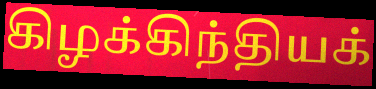
கிழக்கிந்தியக்